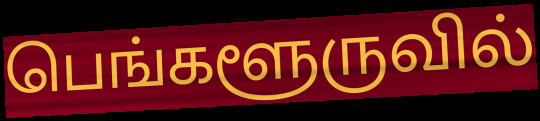
பெங்களூருவில்